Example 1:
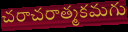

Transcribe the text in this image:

చరాచరాత్మకమగు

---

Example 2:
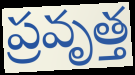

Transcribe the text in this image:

ప్రవృత్త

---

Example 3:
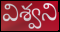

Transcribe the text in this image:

విశ్వని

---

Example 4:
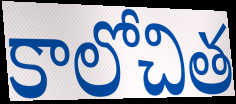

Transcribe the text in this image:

కాలోచిత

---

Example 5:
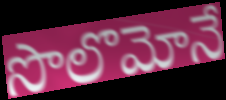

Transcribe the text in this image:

సొలొమోనే